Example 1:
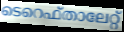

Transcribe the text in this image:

ടെറെഫ്താലേറ്റ്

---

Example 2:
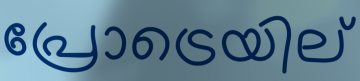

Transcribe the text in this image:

പ്രോട്രെയില്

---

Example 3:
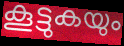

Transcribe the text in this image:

കൂട്ടുകയും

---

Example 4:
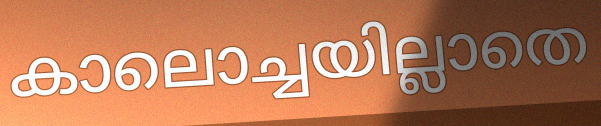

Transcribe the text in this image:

കാലൊച്ചയില്ലാതെ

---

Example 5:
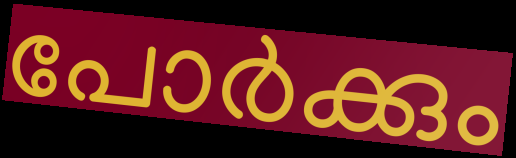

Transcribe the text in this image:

പോർക്കും